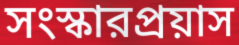
সংস্কারপ্রয়াস